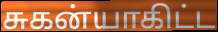
சுகன்யாகிட்ட